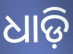
ଧାଡ଼ି